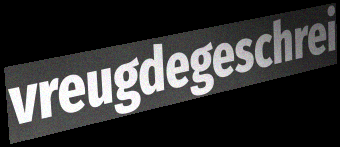
vreugdegeschrei